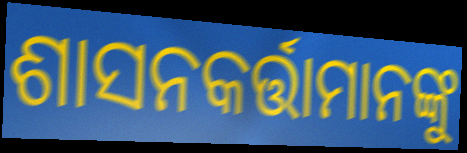
ଶାସନକର୍ତ୍ତାମାନଙ୍କୁ